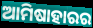
ଆମିଷାହାରର